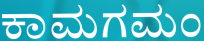
ಕಾಮಗಮಂ